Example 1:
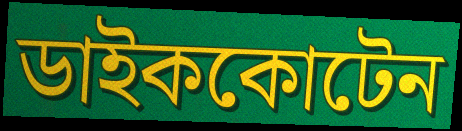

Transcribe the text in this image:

ডাইককোটেন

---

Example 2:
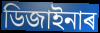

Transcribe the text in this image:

ডিজাইনাৰ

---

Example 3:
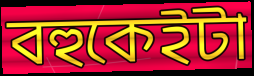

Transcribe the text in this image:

বহুকেইটা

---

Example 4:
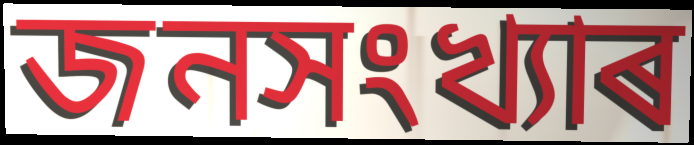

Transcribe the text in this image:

জনসংখ্যাৰ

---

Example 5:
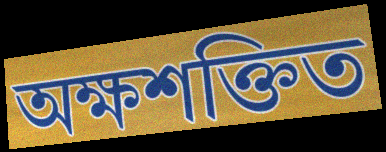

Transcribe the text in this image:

অক্ষশক্তিত